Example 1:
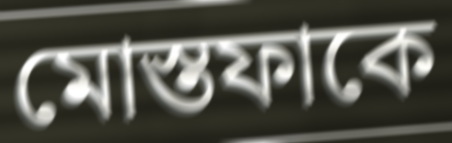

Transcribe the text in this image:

মোস্তফাকে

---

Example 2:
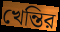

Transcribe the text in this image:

খেন্তির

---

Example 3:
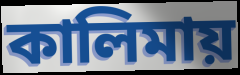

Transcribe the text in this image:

কালিমায়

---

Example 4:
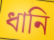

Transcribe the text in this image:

ধানি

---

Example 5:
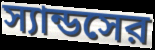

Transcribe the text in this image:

স্যান্ডসের